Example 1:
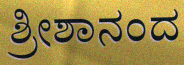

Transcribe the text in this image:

ಶ್ರೀಶಾನಂದ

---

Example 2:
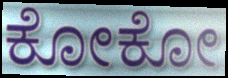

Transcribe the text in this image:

ಕೋಕೋ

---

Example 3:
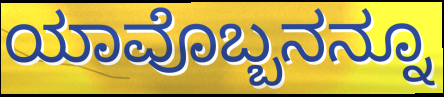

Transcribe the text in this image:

ಯಾವೊಬ್ಬನನ್ನೂ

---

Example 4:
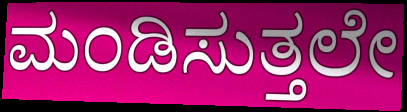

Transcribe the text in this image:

ಮಂಡಿಸುತ್ತಲೇ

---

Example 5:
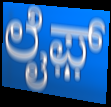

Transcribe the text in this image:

ಲೈಫ಼್